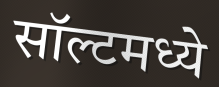
सॉल्टमध्ये